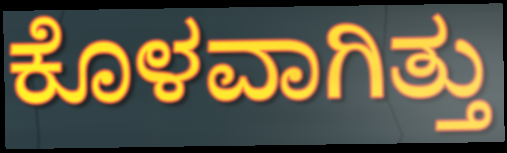
ಕೊಳವಾಗಿತ್ತು